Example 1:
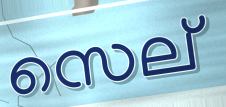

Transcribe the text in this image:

സെല്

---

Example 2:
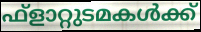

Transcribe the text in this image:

ഫ്ളാറ്റുടമകൾക്ക്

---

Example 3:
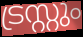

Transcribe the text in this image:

ട്രസ്റ്റും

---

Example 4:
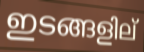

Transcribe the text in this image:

ഇടങ്ങളില്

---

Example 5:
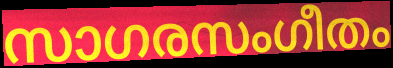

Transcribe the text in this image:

സാഗരസംഗീതം